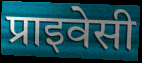
प्राइवेसी